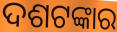
ଦଶଟଙ୍କାର